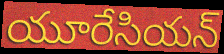
యూరేసియన్